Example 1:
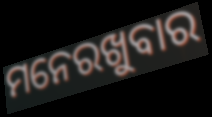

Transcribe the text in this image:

ମନେରଖୁବାର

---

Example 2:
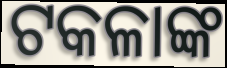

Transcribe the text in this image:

ଟକଳାଙ୍କ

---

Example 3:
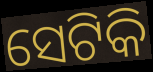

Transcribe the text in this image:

ସେଟିକି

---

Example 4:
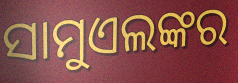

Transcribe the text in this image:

ସାମୁଏଲଙ୍କର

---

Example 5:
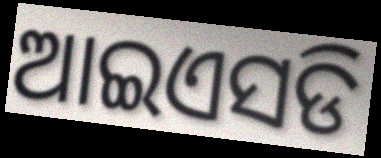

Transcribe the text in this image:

ଆଇଏସଡି